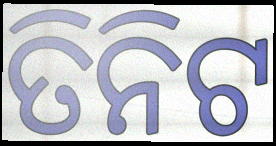
ତିନିଟ